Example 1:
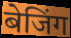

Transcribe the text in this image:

बेजिंग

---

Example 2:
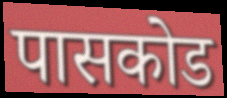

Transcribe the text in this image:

पासकोड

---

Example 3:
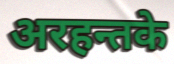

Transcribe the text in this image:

अरहन्तके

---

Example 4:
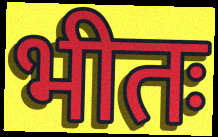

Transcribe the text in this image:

भीतः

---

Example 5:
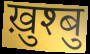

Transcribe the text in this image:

ख़ुश्बु